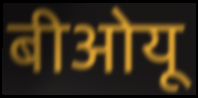
बीओयू